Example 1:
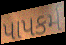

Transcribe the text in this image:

પાપકર્મ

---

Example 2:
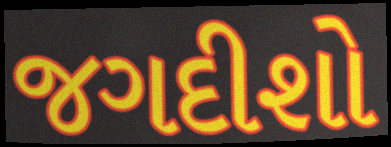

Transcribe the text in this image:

જગદીશો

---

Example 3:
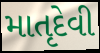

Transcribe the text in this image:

માતૃદેવી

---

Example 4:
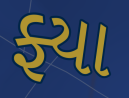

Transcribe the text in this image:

ફ્યા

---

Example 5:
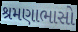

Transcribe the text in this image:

શ્રમણાભાસો